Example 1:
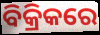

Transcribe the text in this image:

ବିକ୍ରିକରେ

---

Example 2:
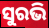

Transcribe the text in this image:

ସୁରଭି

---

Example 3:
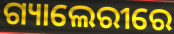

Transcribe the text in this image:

ଗ୍ୟାଲେରୀରେ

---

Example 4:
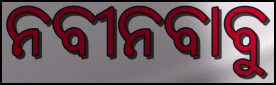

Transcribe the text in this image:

ନବୀନବାବୁ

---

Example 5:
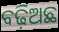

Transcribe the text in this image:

ବଢ଼ିଅଛ